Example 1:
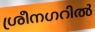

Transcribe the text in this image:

ശ്രീനഗറിൽ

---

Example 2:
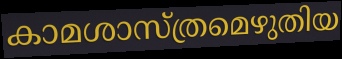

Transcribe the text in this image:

കാമശാസ്ത്രമെഴുതിയ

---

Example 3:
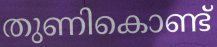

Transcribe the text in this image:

തുണികൊണ്ട്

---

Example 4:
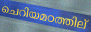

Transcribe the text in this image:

ചെറിയമഠത്തില്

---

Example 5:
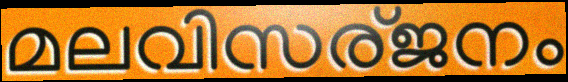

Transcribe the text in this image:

മലവിസര്ജനം